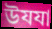
উযযা